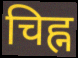
चिह्न